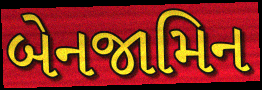
બેનજામિન